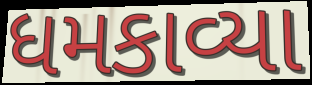
ધમકાવ્યા